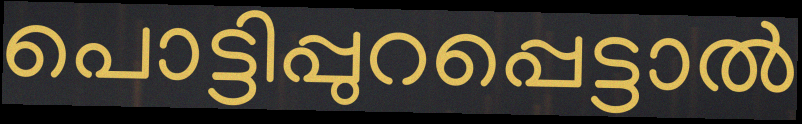
പൊട്ടിപ്പുറപ്പെട്ടാൽ